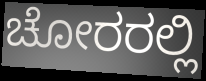
ಚೋರರಲ್ಲಿ